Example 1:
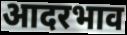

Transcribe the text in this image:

आदरभाव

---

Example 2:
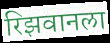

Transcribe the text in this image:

रिझवानला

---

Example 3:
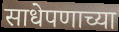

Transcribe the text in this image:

साधेपणाच्या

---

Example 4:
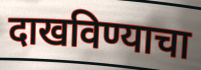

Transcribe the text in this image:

दाखविण्याचा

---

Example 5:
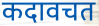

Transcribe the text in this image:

कदावचत